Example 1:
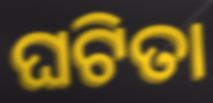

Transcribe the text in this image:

ଘଟିତା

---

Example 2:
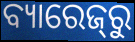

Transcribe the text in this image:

ବ୍ୟାରେଜ୍‌ରୁ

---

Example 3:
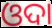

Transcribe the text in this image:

ଓଦା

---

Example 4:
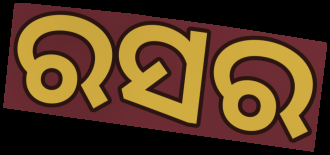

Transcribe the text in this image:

ରସର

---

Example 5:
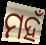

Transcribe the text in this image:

ମହଁ